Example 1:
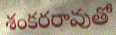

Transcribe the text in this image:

శంకరరావుతో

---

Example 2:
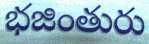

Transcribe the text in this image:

భజింతురు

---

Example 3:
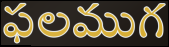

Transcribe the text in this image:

ఫలముగ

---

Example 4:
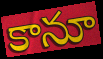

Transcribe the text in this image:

కానూ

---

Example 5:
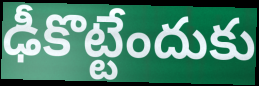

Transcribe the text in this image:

ఢీకొట్టేందుకు